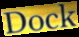
Dock